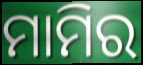
ମାମିର